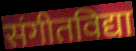
संगीतविद्या